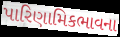
પારિણામિકભાવના